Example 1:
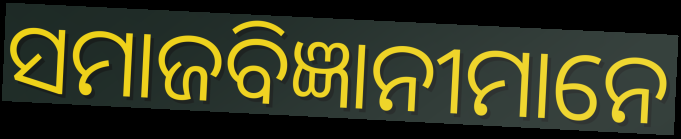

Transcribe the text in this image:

ସମାଜବିଜ୍ଞାନୀମାନେ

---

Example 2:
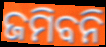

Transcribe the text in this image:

ଜମିବନି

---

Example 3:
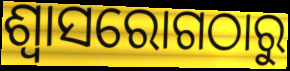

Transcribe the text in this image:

ଶ୍ୱାସରୋଗଠାରୁ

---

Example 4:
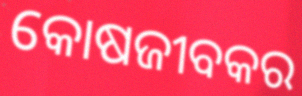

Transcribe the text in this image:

କୋଷଜୀବକର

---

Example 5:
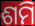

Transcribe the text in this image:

ଶମି